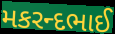
મકરન્દભાઈ